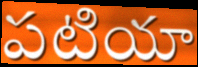
పటియా